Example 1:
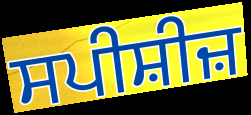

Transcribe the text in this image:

ਸਪੀਸ਼ੀਜ਼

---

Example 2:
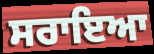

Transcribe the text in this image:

ਸਰਾਇਆ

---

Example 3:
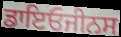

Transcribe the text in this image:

ਡਾਇਓਜੀਨਸ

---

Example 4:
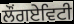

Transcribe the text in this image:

ਲੌਂਗਏਵਿਟੀ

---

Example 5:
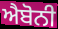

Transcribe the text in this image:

ਐਬੋਨੀ